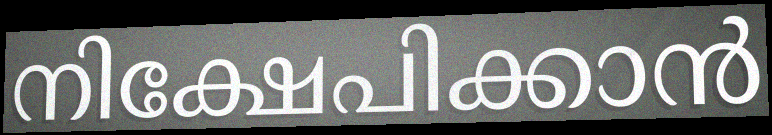
നിക്ഷേപിക്കാൻ